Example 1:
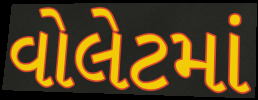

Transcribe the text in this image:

વોલેટમાં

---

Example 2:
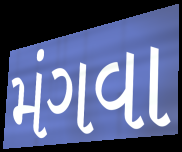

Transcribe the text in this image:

મંગવા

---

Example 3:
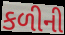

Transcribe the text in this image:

કળીની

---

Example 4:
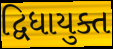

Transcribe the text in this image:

દ્વિધાયુક્ત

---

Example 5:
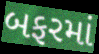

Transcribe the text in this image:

બફરમાં